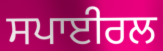
ਸਪਾਈਰਲ